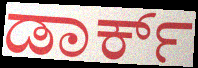
ಡಾರ್ಕ್